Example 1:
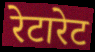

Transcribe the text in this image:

रेटारेट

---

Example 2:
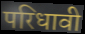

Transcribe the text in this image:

परिधावी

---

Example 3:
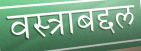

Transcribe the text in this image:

वस्त्राबद्दल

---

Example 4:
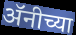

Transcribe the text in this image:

ॲनीच्या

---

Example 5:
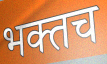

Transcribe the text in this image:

भक्तच